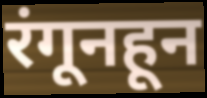
रंगूनहून